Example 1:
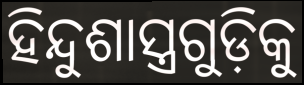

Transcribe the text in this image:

ହିନ୍ଦୁଶାସ୍ତ୍ରଗୁଡ଼ିକୁ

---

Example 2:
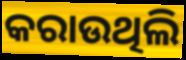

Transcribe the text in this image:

କରାଉଥିଲି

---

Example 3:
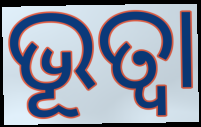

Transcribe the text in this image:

ଭୂତ୍ଵା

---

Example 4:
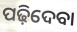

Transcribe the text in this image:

ପଢ଼ିଦେବା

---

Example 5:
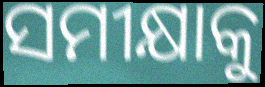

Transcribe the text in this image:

ସମୀକ୍ଷାକୁ